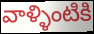
వాళ్ళింటికి